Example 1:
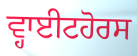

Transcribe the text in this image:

ਵ੍ਹਾਈਟਹੋਰਸ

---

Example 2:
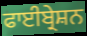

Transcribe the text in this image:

ਫਾਈਬ੍ਰੇਸ਼ਨ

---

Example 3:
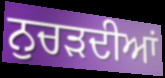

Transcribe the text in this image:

ਨੁਚੜਦੀਆਂ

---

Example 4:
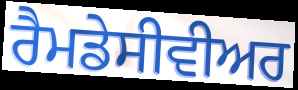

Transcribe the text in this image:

ਰੈਮਡੇਸੀਵੀਅਰ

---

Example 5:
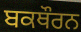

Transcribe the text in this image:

ਬਕਥੌਰਨ